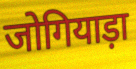
जोगियाड़ा